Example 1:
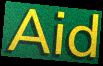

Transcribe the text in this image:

Aid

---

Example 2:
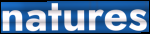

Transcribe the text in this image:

natures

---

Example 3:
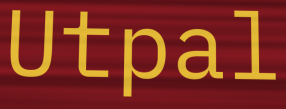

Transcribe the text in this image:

Utpal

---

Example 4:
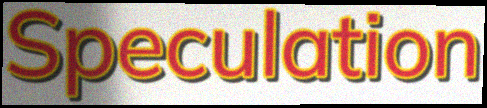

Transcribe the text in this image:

Speculation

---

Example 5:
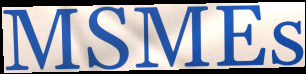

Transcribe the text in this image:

MSMEs